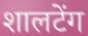
शालटेंग